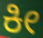
ಕೀ